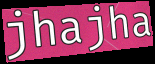
jhajha